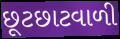
છૂટછાટવાળી